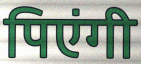
पिएंगी